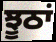
ਝੂਠਾਂ